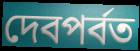
দেবপর্বত